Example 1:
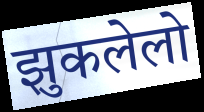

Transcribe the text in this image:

झुकलेलो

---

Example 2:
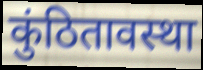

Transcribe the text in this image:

कुंठितावस्था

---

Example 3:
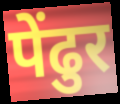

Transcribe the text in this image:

पेंढुर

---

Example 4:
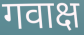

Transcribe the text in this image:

गवाक्ष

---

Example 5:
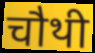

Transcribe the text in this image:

चौथी